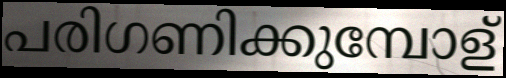
പരിഗണിക്കുമ്പോള്